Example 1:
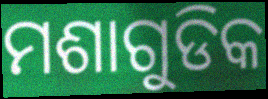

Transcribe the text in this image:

ମଶାଗୁଡିକ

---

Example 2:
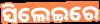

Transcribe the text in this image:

ସିଲେଇରେ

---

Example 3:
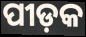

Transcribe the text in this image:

ପୀଡ଼କ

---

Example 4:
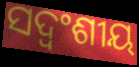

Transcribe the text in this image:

ସଦ୍ବଂଶୀୟ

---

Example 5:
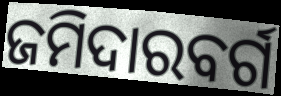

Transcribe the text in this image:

ଜମିଦାରବର୍ଗ